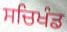
ਸਚਿਖੰਡ